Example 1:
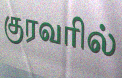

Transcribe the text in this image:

குரவரில்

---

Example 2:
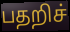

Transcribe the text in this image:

பதறிச்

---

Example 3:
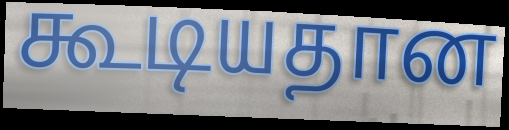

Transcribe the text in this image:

கூடியதான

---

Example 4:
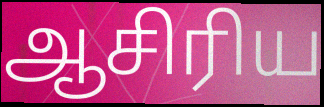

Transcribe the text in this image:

ஆசிரிய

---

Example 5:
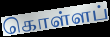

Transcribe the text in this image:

கொள்ளப்